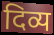
दिव्य